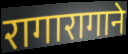
रागारागाने